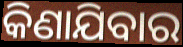
କିଣାଯିବାର